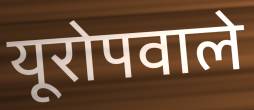
यूरोपवाले